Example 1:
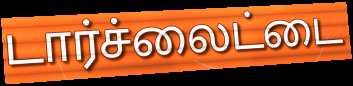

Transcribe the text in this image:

டார்ச்லைட்டை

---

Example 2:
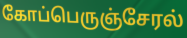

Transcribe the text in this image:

கோப்பெருஞ்சேரல்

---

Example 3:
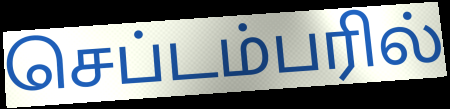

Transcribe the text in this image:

செப்டம்பரில்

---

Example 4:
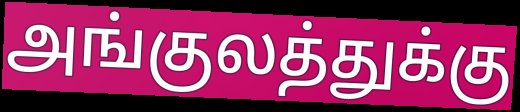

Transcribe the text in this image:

அங்குலத்துக்கு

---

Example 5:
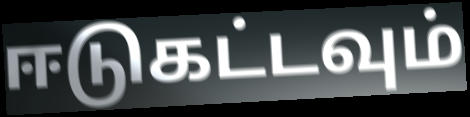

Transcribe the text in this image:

ஈடுகட்டவும்